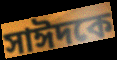
সাঈদকে